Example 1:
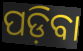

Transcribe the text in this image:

ପଡ଼ିବା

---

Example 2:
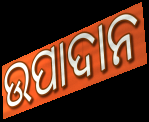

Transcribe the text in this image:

ଉପାଦାନ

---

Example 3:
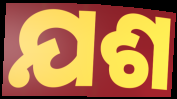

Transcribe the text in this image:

ଯଶ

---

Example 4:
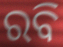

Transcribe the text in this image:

ରବି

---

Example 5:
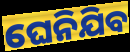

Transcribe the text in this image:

ଘେନିଯିବ